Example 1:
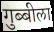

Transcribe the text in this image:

गुब्बीला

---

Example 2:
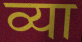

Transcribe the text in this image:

व्या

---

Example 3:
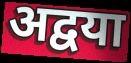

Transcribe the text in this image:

अद्वया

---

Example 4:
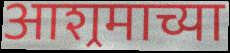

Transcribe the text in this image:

आश्रमाच्या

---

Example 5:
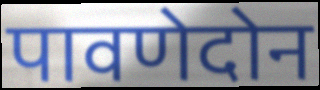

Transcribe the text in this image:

पावणेदोन